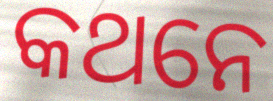
କଥନେ